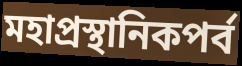
মহাপ্রস্থানিকপর্ব